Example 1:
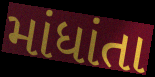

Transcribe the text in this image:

માંધાંતા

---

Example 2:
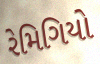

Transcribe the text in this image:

રેમિગિયો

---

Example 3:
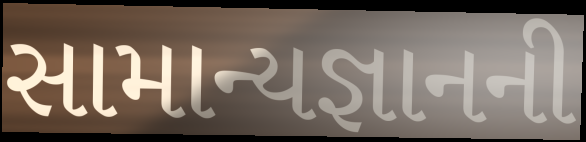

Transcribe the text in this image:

સામાન્યજ્ઞાનની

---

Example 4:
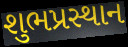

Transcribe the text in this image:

શુભપ્રસ્થાન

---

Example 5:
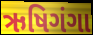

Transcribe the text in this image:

ઋષિગંગા